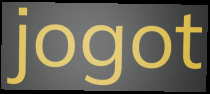
jogot